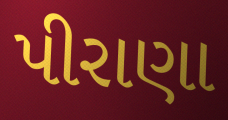
પીરાણા